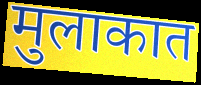
मुलाकात